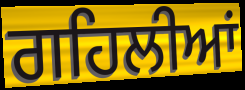
ਗਹਿਲੀਆਂ